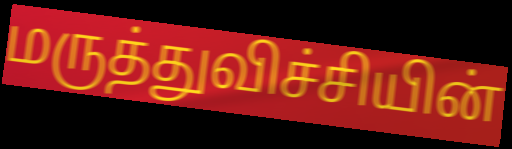
மருத்துவிச்சியின்